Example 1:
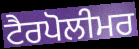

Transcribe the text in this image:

ਟੈਰਪੋਲੀਮਰ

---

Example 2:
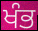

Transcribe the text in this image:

ਖੰਭ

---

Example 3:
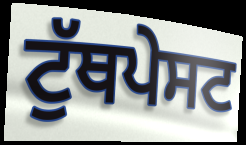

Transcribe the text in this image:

ਟੁੱਥਪੇਸਟ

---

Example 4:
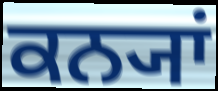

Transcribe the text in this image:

ਕਨ੍ਯਾਂ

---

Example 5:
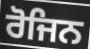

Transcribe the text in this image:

ਰੋਜਿਨ